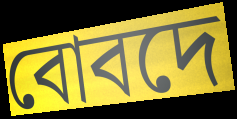
বোবদে